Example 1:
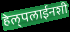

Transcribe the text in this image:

हेल्पलाईनशी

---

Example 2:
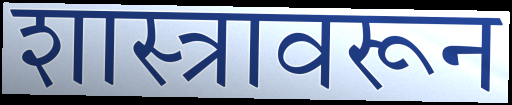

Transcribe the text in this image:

शास्त्रावरून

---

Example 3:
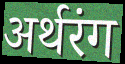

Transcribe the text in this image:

अर्थरंग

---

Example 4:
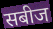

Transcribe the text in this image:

सबीज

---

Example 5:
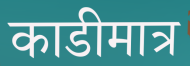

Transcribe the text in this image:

काडीमात्र